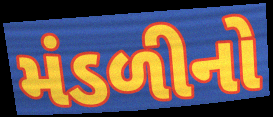
મંડળીનો